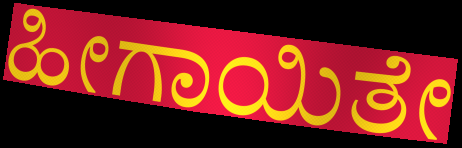
ಹೀಗಾಯಿತೇ